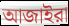
আজাইরা